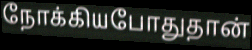
நோக்கியபோதுதான்